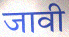
जावी